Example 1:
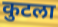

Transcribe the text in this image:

कुटला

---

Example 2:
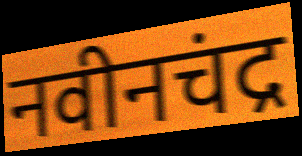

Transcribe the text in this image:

नवीनचंद्र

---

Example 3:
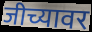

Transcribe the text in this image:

जीच्यावर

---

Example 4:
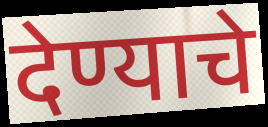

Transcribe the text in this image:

देण्याचे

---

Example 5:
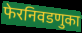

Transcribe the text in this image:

फेरनिवडणुका